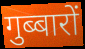
गुब्बारों